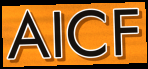
AICF